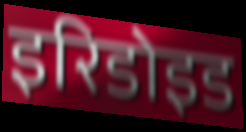
इरिडोइड